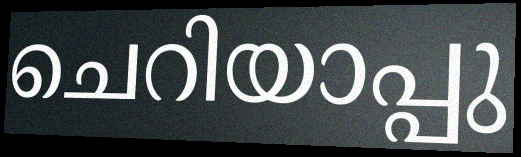
ചെറിയാപ്പു